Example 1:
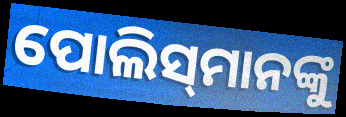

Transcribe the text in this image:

ପୋଲିସ୍‌ମାନଙ୍କୁ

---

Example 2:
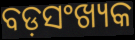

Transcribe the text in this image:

ବଡ଼ସଂଖ୍ୟକ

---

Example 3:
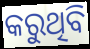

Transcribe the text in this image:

କରୁଥିବି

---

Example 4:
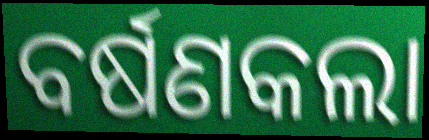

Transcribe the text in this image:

ବର୍ଷଣକଲା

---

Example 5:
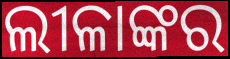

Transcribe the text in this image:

ଲୀଳାଙ୍କର